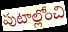
పుటాల్లోంచి